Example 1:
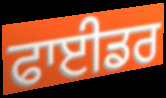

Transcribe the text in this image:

ਫਾਈਡਰ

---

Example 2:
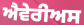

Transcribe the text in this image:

ਐਵੇਰੀਅਸ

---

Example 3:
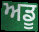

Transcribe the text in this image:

ਅਡੂ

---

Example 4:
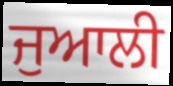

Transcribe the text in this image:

ਜੁਆਲੀ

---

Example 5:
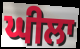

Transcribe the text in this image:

ਘੀਲਾ